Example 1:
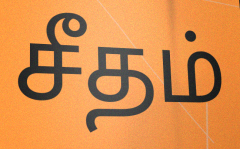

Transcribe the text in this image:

சீதம்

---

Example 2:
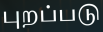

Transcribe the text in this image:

புறப்படு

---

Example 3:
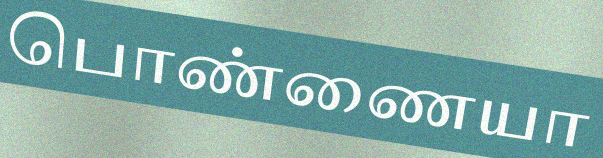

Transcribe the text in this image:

பொண்ணையா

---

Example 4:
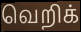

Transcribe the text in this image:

வெறிக்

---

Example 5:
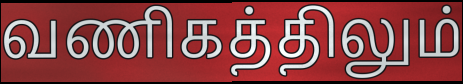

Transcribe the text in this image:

வணிகத்திலும்